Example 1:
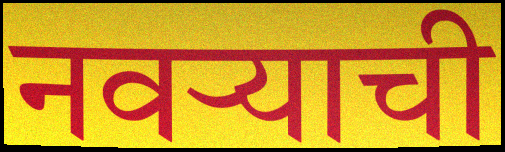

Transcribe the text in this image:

नवर्‍याची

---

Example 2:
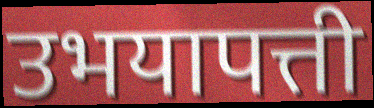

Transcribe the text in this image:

उभयापत्ती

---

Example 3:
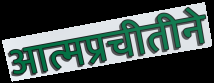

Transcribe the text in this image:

आत्मप्रचीतीने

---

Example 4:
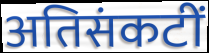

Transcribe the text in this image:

अतिसंकटीं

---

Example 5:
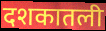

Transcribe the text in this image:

दशकातली